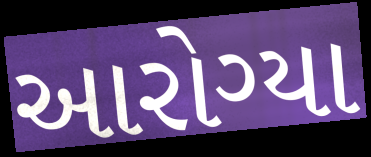
આરોગ્યા